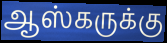
ஆஸ்கருக்கு